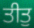
ਤੀਤੁ